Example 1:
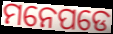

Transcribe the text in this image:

ମନେପଡେ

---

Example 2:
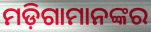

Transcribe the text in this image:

ମଡ଼ିଗାମାନଙ୍କର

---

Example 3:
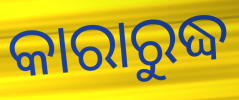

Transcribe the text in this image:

କାରାରୁଦ୍ଧ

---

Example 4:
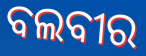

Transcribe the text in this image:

ବଲବୀର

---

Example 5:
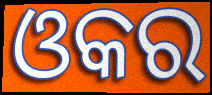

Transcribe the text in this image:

ଓକର